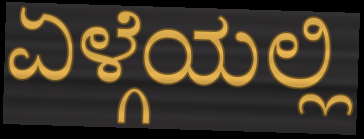
ಏಳ್ಗೆಯಲ್ಲಿ